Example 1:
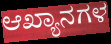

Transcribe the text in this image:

ಆಖ್ಯಾನಗಳ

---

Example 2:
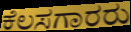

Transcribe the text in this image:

ಕೆಲಸಗಾರರು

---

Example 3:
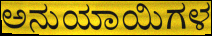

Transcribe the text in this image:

ಅನುಯಾಯಿಗಳ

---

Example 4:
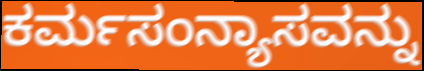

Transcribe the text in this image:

ಕರ್ಮಸಂನ್ಯಾಸವನ್ನು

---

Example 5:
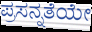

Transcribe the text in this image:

ಪ್ರಸನ್ನತೆಯೇ